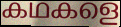
കഥകളെ